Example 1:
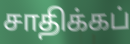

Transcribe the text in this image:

சாதிக்கப்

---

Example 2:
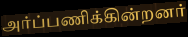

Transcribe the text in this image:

அர்ப்பணிக்கின்றனர்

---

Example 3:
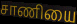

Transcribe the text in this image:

சாணியை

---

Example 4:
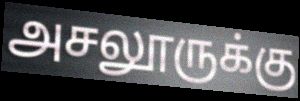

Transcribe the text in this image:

அசலூருக்கு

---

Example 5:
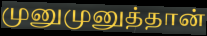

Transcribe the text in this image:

முனுமுனுத்தான்